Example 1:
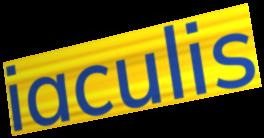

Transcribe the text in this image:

iaculis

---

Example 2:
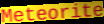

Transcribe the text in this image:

Meteorite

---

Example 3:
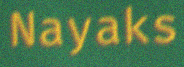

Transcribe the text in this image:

Nayaks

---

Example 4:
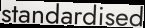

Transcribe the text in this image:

standardised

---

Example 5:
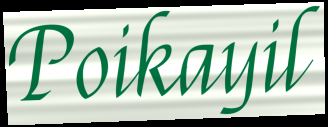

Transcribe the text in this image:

Poikayil